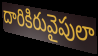
దారికిరువైపులా